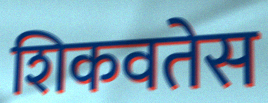
शिकवतेस